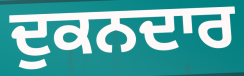
ਦੁਕਨਦਾਰ